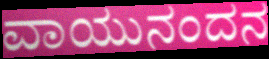
ವಾಯುನಂದನ